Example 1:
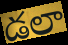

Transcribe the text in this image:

డలా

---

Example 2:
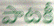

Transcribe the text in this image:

పాటకీ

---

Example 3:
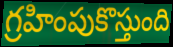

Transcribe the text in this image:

గ్రహింపుకొస్తుంది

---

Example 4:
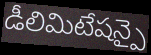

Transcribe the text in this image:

డీలిమిటేషన్పై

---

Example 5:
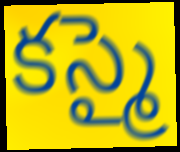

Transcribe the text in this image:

కస్మై